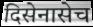
दिसेनासेच